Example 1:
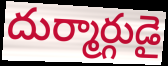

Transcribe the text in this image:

దుర్మార్గుడై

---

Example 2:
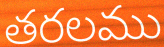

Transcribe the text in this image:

తరలము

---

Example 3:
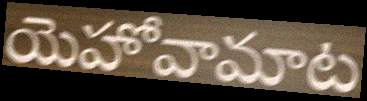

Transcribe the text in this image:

యెహోవామాట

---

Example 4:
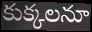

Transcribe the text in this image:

కుక్కలనూ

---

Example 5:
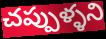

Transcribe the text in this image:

చప్పుళ్ళని